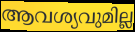
ആവശ്യവുമില്ല